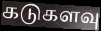
கடுகளவு